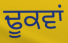
ਢੂਕਵਾਂ